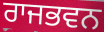
ਰਾਜਭਵਨ